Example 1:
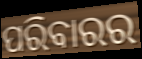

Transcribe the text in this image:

ପରିବାରର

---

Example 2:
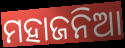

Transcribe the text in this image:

ମହାଜନିଆ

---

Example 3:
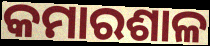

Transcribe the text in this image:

କମାରଶାଳ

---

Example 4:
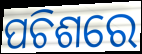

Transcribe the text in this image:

ପଚିଶରେ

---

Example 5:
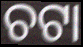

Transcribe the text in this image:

ଚଟା